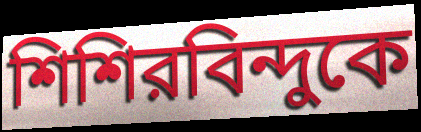
শিশিরবিন্দুকে